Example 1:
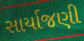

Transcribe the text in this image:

સાર્યાજણી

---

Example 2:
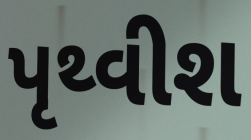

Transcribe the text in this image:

પૃથ્વીશ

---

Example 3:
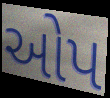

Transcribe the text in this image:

ઓપ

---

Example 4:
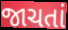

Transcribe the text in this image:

જાચતાં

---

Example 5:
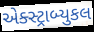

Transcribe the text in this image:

એક્સ્ટ્રાબ્યુકલ